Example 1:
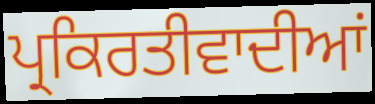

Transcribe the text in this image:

ਪ੍ਰਕਿਰਤੀਵਾਦੀਆਂ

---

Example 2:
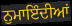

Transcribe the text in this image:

ਨੁਮਾਇੰਦੀਆਂ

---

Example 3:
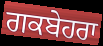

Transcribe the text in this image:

ਗਕਬੇਹਰਾ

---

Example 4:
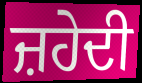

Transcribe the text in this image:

ਜ਼ਹੇਦੀ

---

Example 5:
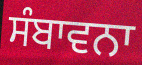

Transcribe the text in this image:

ਸੰਬਾਵਨਾ